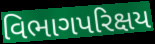
વિભાગપરિક્ષય